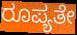
ರೂಪ್ಯತೇ